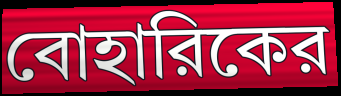
বোহারিকের